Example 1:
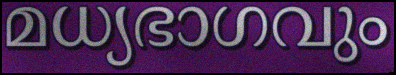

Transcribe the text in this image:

മധ്യഭാഗവും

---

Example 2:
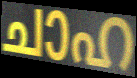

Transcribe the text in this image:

ചാഹ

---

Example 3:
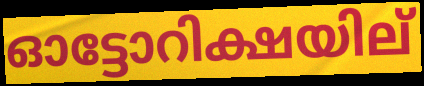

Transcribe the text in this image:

ഓട്ടോറിക്ഷയില്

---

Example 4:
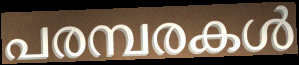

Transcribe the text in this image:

പരമ്പരകൾ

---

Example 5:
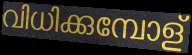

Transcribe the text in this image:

വിധിക്കുമ്പോള്